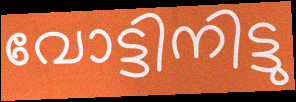
വോട്ടിനിട്ടു